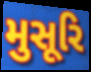
મુસૂરિ